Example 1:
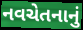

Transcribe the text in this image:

નવચેતનાનું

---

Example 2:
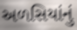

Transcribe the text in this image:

અળસિયાંનું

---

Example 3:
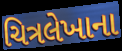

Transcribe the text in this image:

ચિત્રલેખાના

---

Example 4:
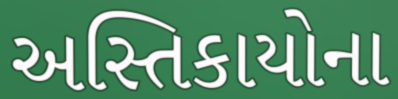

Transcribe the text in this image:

અસ્તિકાયોના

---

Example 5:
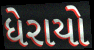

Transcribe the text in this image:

ધેરાયો